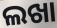
ଲଖା